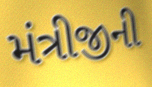
મંત્રીજીની